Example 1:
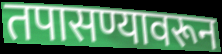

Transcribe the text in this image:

तपासण्यावरून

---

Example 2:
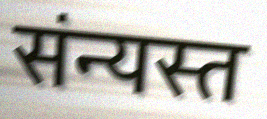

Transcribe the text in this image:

संन्यस्त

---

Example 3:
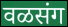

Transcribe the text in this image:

वळसंग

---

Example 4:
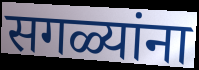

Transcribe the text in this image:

सगळ्यांना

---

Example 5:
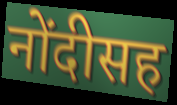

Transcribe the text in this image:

नोंदीसह